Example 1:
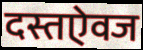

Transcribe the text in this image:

दस्तऐवज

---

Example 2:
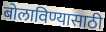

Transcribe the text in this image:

बोलाविण्यासाठी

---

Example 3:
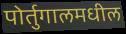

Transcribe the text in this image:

पोर्तुगालमधील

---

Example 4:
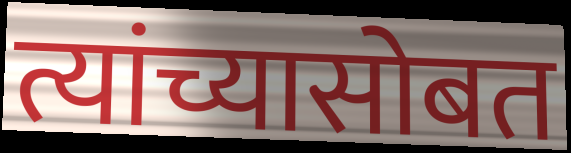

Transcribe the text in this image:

त्यांच्यासोबत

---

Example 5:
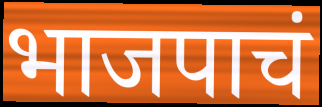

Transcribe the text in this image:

भाजपाचं